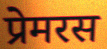
प्रेमरस